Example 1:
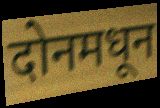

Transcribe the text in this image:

दोनमधून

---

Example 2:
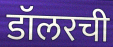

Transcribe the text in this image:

डॉलरची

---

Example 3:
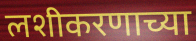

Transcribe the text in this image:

लशीकरणाच्या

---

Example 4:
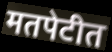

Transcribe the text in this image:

मतपेटीत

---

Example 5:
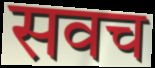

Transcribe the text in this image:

सवच